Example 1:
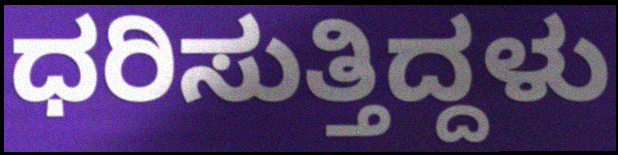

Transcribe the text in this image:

ಧರಿಸುತ್ತಿದ್ದಳು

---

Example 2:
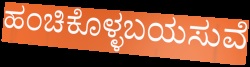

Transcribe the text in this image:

ಹಂಚಿಕೊಳ್ಳಬಯಸುವೆ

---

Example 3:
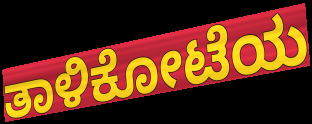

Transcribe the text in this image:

ತಾಳಿಕೋಟೆಯ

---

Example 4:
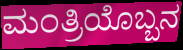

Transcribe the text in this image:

ಮಂತ್ರಿಯೊಬ್ಬನ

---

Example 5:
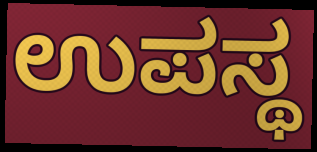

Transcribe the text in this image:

ಉಪಸ್ಥ